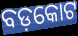
ବଡ଼କୋଟ